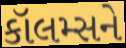
કૉલમ્સને